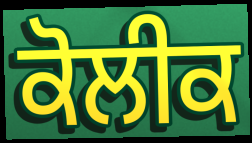
ਕੋਲੀਕ